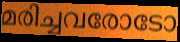
മരിച്ചവരോടോ